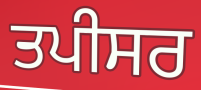
ਤਪੀਸਰ